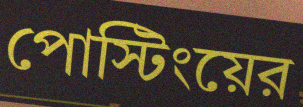
পোস্টিংয়ের